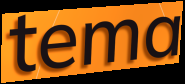
tema